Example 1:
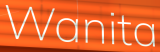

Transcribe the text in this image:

Wanita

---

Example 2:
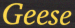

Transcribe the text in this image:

Geese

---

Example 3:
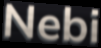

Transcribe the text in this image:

Nebi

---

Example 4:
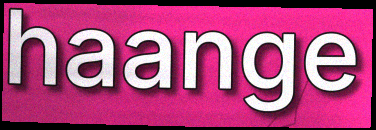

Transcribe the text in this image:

haange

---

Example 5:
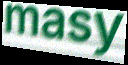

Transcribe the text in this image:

masy